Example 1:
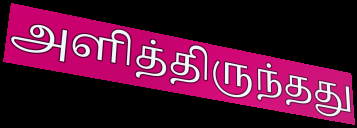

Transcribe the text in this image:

அளித்திருந்தது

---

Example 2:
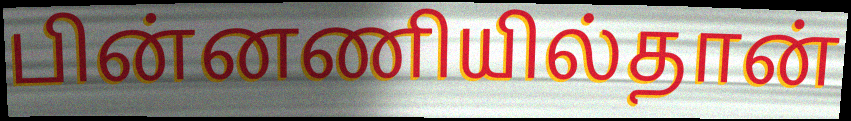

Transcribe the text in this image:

பின்னணியில்தான்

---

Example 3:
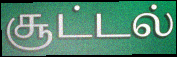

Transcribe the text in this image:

சூட்டல்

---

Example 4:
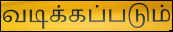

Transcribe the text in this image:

வடிக்கப்படும்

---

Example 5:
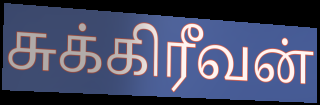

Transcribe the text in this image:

சுக்கிரீவன்